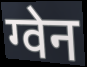
ग्वेन